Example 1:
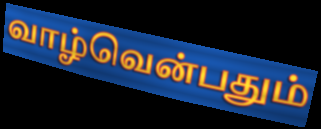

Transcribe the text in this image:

வாழ்வென்பதும்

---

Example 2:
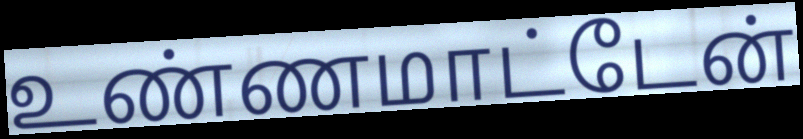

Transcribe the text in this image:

உண்ணமாட்டேன்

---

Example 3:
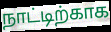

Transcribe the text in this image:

நாட்டிற்காக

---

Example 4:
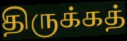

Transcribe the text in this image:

திருக்கத்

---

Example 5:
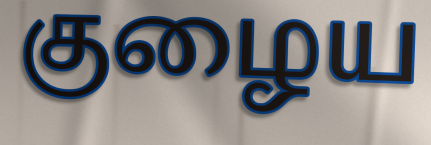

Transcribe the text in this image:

குழைய